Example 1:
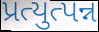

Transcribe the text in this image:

પ્રત્યુત્પન્ન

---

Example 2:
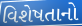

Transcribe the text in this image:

વિશેષતાનો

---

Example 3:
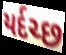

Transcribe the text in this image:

યર્દચ્છ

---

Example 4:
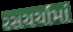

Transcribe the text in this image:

રસચર્ચામાં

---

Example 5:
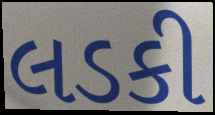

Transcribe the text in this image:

લડકી